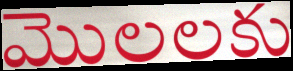
మొలలకు